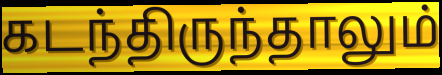
கடந்திருந்தாலும்